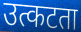
उत्कटता